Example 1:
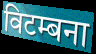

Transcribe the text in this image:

विटम्बना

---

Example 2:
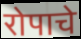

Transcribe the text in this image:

रोपाचे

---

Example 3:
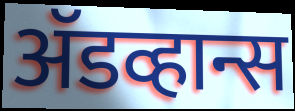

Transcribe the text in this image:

ॲडव्हान्स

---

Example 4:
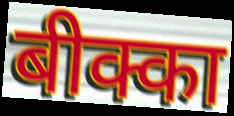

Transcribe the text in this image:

बीक्का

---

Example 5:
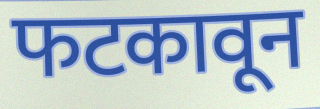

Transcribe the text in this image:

फटकावून